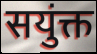
सयुंक्त